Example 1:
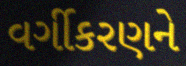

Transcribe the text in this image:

વર્ગીકરણને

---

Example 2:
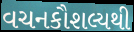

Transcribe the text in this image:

વચનકૌશલ્યથી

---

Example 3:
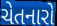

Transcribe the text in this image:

ચેતનારો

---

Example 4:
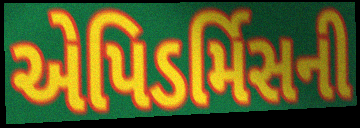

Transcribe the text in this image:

એપિડર્મિસની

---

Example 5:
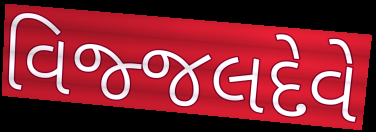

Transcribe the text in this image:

વિજ્જલદેવે